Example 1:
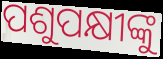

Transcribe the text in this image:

ପଶୁପକ୍ଷୀଙ୍କୁ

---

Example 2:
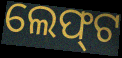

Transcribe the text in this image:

ଲେଫ୍‌ଟ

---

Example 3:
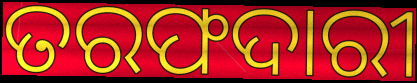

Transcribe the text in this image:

ତରଫଦାରୀ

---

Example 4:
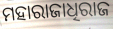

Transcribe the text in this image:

ମହାରାଜାଧିରାଜ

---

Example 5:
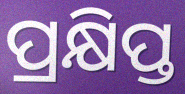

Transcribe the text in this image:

ପ୍ରକ୍ଷିପ୍ତ